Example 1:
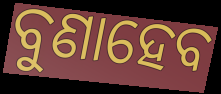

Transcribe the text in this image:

ବୁଣାହେବ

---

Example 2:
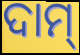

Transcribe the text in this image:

ଦାମ୍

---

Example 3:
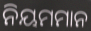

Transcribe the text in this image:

ନିୟମମାନ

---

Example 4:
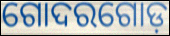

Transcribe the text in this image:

ଗୋଦରଗୋଡ଼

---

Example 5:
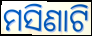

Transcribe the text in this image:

ମସିଣାଟି